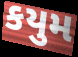
કયુમ